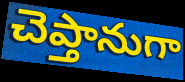
చెప్తానుగా